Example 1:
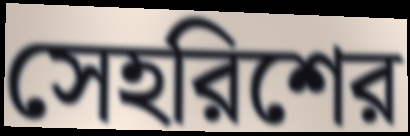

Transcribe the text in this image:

সেহরিশের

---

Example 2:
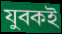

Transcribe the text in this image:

যুবকই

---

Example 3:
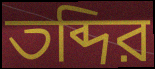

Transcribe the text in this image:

তব্দির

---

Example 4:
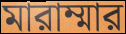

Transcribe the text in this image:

মারাম্মার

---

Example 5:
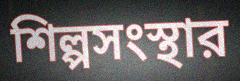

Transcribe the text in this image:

শিল্পসংস্থার